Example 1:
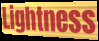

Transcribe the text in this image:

Lightness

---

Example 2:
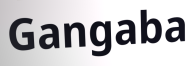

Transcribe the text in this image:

Gangaba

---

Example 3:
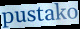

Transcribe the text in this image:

pustako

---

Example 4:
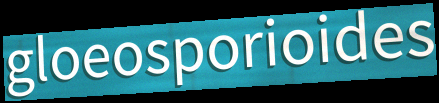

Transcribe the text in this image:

gloeosporioides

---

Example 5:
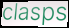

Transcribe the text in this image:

clasps